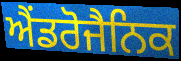
ਐਂਡਰੋਜੈਨਿਕ